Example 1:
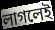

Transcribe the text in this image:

লাগলেই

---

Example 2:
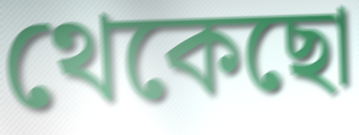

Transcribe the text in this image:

থেকেছো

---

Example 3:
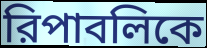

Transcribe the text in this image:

রিপাবলিকে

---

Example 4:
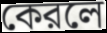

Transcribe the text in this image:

কেরলে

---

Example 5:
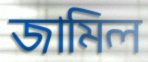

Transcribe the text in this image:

জামিল